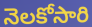
నెలకోసారి